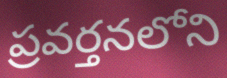
ప్రవర్తనలోని